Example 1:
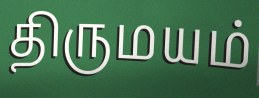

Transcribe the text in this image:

திருமயம்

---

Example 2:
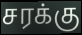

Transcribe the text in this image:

சரக்கு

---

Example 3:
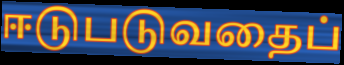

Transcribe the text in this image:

ஈடுபடுவதைப்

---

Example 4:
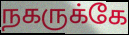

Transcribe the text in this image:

நகருக்கே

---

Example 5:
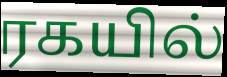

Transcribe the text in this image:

ரகயில்